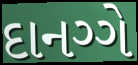
દાનગ્ગે